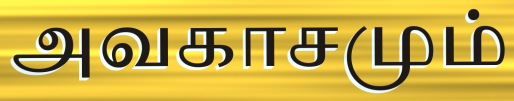
அவகாசமும்